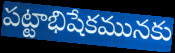
పట్టాభిషేకమునకు